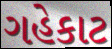
ગહેકાટ